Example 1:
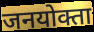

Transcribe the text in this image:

जनयोक्ता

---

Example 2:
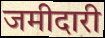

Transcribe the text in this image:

जमीदारी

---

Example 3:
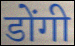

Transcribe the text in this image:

डोंगी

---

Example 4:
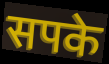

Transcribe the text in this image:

सपके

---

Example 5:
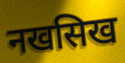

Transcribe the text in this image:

नखसिख